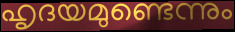
ഹൃദയമുണ്ടെന്നും